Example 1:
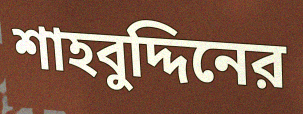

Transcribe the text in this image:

শাহবুদ্দিনের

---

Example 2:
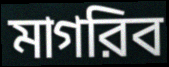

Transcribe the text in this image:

মাগরিব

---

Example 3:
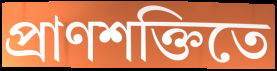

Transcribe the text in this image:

প্রাণশক্তিতে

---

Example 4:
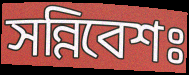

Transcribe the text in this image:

সন্নিবেশঃ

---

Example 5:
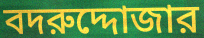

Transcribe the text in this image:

বদরুদ্দোজার